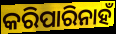
କରିପାରିନାହଁ